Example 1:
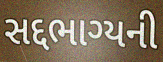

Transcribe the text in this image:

સદ્દભાગ્યની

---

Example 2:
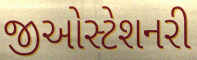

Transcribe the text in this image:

જીઓસ્ટેશનરી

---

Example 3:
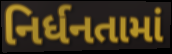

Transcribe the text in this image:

નિર્ધનતામાં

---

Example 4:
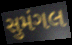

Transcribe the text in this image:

સુમંગલ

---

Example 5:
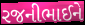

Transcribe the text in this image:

રજનીભાઈને